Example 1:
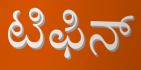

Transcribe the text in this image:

ಟಿಫಿನ್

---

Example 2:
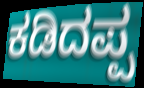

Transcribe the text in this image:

ಕಡಿದಪ್ಪ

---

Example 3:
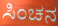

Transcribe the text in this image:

ಸಿಂಚನ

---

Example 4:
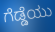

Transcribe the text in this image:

ಗೆಡ್ಡೆಯು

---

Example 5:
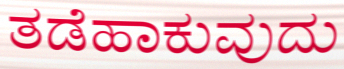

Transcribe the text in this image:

ತಡೆಹಾಕುವುದು